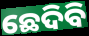
ଛେଦିବି